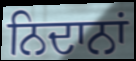
ਨਿਦਾਨਾਂ